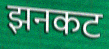
झनकट